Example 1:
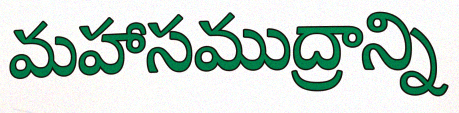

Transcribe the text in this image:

మహాసముద్రాన్ని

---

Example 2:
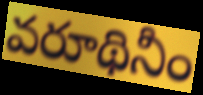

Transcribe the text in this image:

వరూథినీం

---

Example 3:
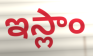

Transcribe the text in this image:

ఇస్లాం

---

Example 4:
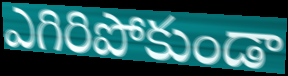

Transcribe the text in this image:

ఎగిరిపోకుండా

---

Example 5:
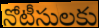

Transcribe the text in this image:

నోటీసులకు